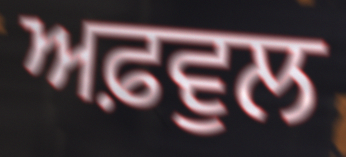
ਅਫ਼ਵੁਲ